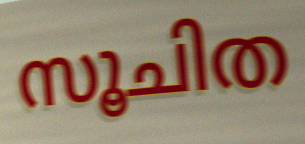
സൂചിത